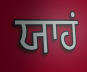
ਯਾਹਂ